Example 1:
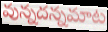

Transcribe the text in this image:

వున్నదన్నమాట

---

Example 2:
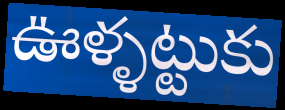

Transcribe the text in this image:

ఊళ్ళట్టుకు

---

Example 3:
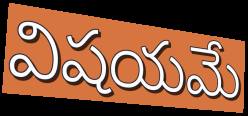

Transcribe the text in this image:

విషయమే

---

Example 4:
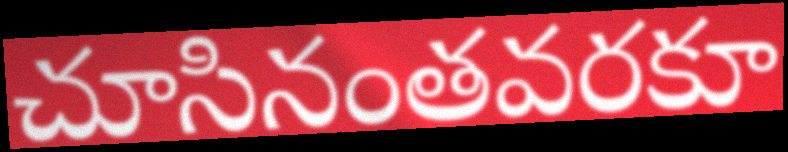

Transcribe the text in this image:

చూసినంతవరకూ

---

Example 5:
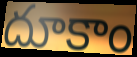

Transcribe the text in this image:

దూకాం